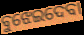
ବୁଝେଇଦେବା